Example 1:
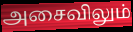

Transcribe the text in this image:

அசைவிலும்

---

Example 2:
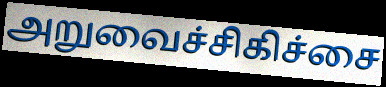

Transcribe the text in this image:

அறுவைச்சிகிச்சை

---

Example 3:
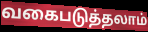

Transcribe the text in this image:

வகைபடுத்தலாம்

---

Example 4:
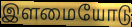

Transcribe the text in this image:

இளமையோடு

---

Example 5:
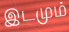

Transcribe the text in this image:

இடமும்